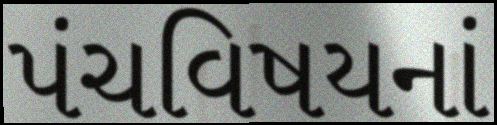
પંચવિષયનાં